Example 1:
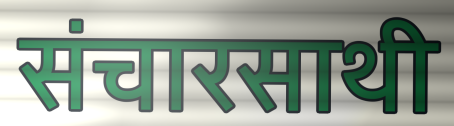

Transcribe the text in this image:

संचारसाथी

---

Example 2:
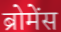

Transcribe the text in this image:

ब्रोमेंस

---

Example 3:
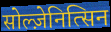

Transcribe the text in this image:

सोल्ज़ेनित्सिन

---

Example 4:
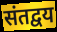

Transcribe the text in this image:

संतद्वय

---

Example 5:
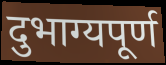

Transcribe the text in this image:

दुभाग्यपूर्ण